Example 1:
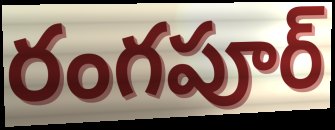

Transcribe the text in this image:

రంగపూర్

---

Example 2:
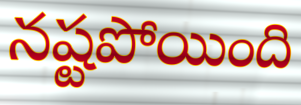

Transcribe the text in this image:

నష్టపోయింది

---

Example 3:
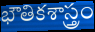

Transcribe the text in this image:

భౌతికశాస్త్రం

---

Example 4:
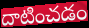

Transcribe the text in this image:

దాటించడం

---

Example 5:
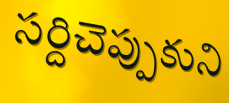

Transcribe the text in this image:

సర్దిచెప్పుకుని